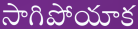
సాగిపోయాక